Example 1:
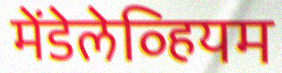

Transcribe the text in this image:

मेंडेलेव्हियम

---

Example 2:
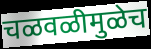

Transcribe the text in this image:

चळवळीमुळेच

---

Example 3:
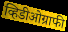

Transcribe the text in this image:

व्हिडीओग्राफी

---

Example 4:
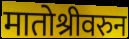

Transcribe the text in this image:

मातोश्रीवरुन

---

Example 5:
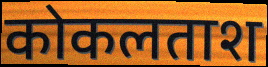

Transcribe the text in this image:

कोकलताश